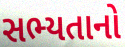
સભ્યતાનો